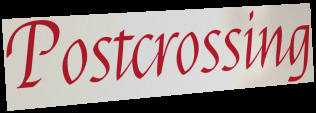
Postcrossing